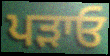
ਪੜਾਓ